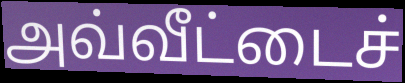
அவ்வீட்டைச்